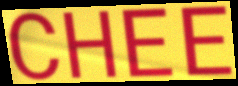
CHEE